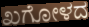
ಖಗೋಳದ